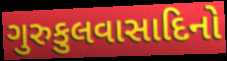
ગુરુકુલવાસાદિનો